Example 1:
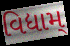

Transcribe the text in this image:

વિદ્યામ્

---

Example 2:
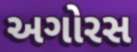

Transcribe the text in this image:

અગોરસ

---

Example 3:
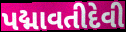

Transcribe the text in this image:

પદ્માવતીદેવી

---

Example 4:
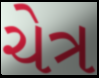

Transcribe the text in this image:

ચેત્ર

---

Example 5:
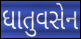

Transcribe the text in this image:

ધાતુવસેન